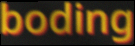
boding